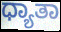
ಧ್ಯಾತಾ